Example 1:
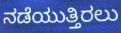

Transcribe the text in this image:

ನಡೆಯುತ್ತಿರಲು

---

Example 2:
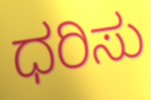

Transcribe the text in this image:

ಧರಿಸು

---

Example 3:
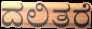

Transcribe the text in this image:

ದಲಿತರೆ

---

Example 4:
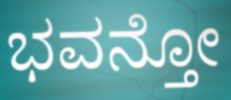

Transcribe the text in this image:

ಭವನ್ತೋ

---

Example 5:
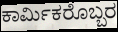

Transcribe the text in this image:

ಕಾರ್ಮಿಕರೊಬ್ಬರ